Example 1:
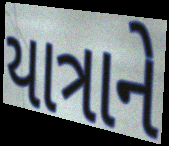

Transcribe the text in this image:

યાત્રાને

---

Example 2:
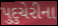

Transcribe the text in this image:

પુદુચેરીના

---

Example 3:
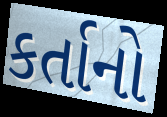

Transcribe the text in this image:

કર્તાનો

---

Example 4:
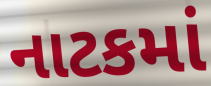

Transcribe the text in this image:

નાટકમાં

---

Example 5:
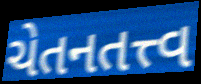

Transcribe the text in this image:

ચેતનતત્ત્વ